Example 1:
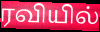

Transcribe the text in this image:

ரவியில்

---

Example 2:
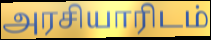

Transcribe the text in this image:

அரசியாரிடம்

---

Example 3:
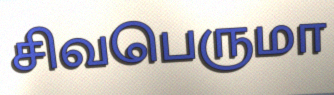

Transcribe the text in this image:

சிவபெருமா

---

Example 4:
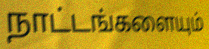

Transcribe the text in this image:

நாட்டங்களையும்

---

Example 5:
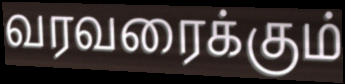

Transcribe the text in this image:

வரவரைக்கும்